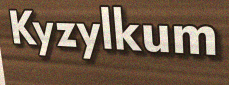
Kyzylkum